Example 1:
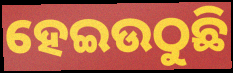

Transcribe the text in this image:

ହେଇଉଠୁଛି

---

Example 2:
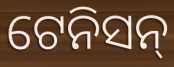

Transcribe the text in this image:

ଟେନିସନ୍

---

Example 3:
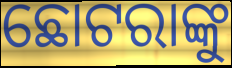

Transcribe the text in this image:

ଛୋଟରାଙ୍କୁ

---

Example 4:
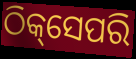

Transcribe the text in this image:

ଠିକ୍‌ସେପରି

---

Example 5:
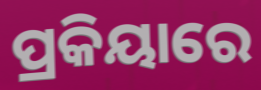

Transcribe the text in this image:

ପ୍ରକିୟାରେ